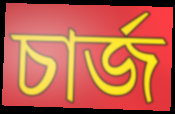
চাৰ্জ